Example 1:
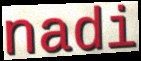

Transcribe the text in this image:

nadi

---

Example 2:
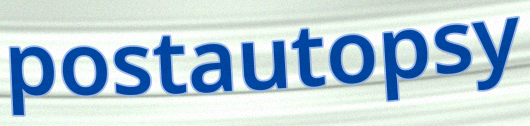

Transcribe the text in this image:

postautopsy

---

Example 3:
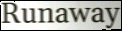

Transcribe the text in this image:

Runaway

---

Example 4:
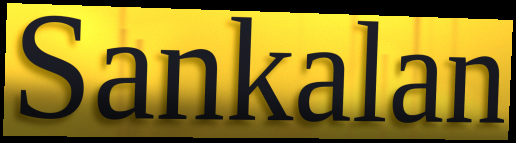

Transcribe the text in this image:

Sankalan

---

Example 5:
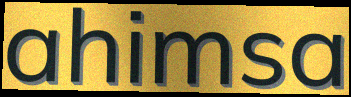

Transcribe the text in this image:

ahimsa